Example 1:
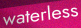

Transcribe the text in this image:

waterless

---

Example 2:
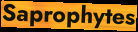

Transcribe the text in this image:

Saprophytes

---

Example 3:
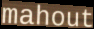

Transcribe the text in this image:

mahout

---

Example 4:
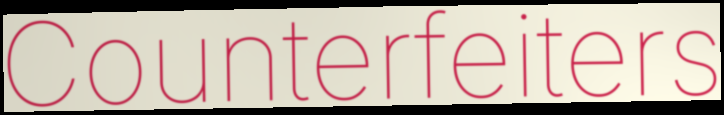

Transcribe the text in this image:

Counterfeiters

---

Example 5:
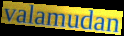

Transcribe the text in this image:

valamudan